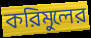
করিমুলের